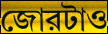
জোরটাও